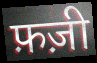
फ़ज़ी